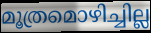
മൂത്രമൊഴിച്ചില്ല